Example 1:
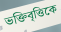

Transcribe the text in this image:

ভক্তিবৃত্তিকে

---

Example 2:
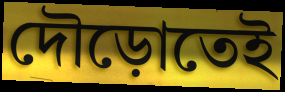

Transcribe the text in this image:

দৌড়োতেই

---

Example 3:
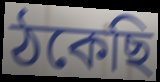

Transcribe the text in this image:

ঠকেছি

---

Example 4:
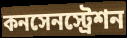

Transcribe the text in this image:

কনসেনস্ট্রেশন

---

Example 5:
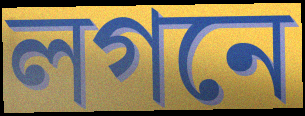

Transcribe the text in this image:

লগনে